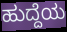
ಹುದ್ದೆಯ